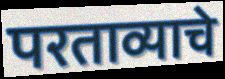
परताव्याचे